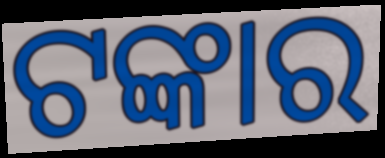
ଟଙ୍କାର